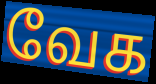
வேக